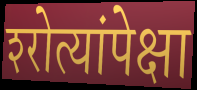
श्रोत्यांपेक्षा